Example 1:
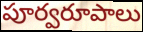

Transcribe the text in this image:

పూర్వరూపాలు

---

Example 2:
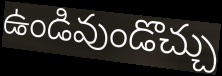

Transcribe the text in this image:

ఉండివుండొచ్చు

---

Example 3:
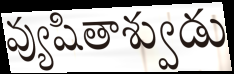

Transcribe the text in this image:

వ్యుషితాశ్వుడు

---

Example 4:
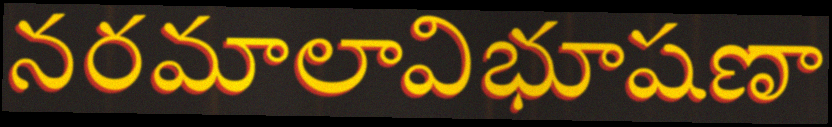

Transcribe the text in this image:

నరమాలావిభూషణా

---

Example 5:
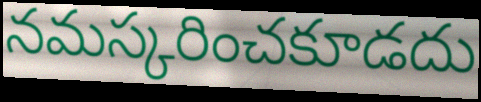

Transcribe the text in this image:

నమస్కరించకూడదు